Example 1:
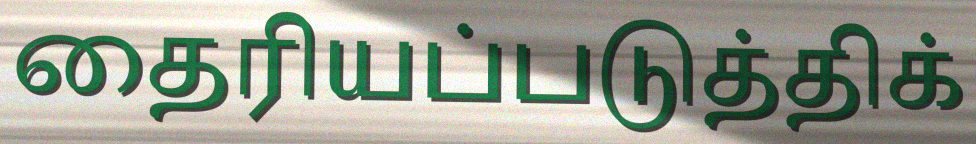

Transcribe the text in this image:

தைரியப்படுத்திக்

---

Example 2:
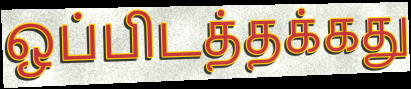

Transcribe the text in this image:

ஒப்பிடத்தக்கது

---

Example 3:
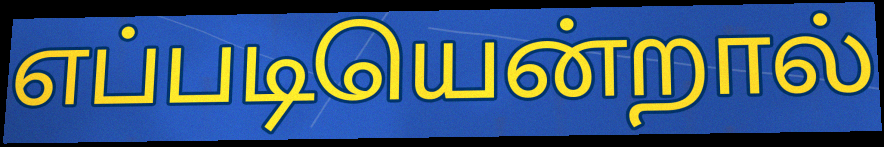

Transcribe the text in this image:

எப்படியென்றால்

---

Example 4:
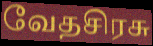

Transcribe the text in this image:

வேதசிரசு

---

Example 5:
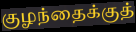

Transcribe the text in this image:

குழந்தைக்குத்